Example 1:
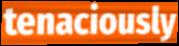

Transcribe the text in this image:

tenaciously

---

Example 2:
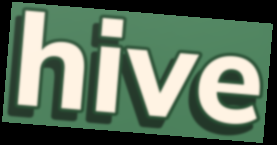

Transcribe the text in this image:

hive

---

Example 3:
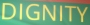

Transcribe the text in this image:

DIGNITY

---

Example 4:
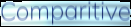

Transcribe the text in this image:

Comparitive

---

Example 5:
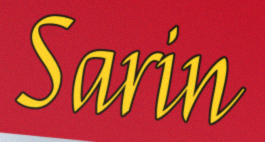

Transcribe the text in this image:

Sarin